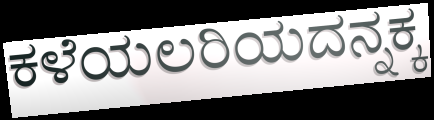
ಕಳೆಯಲರಿಯದನ್ನಕ್ಕ